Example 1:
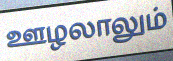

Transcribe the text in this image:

ஊழலாலும்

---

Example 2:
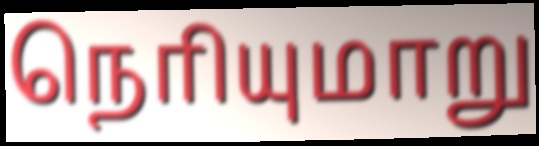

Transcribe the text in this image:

நெரியுமாறு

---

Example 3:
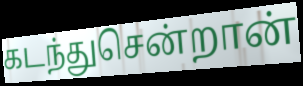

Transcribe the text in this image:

கடந்துசென்றான்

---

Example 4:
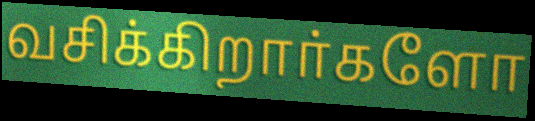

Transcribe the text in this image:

வசிக்கிறார்களோ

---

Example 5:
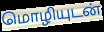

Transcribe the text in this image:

மொழியுடன்